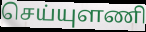
செய்யுளணி